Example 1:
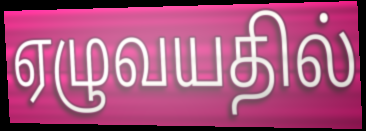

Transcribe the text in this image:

ஏழுவயதில்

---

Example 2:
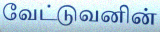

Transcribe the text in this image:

வேட்டுவனின்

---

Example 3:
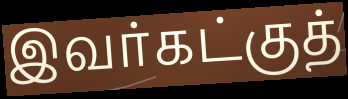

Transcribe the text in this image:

இவர்கட்குத்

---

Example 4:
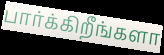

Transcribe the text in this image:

பார்க்கிறீங்களா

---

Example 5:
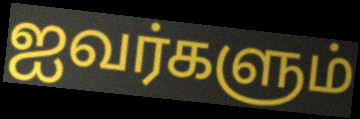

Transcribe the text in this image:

ஐவர்களும்